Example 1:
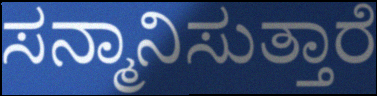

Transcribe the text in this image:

ಸನ್ಮಾನಿಸುತ್ತಾರೆ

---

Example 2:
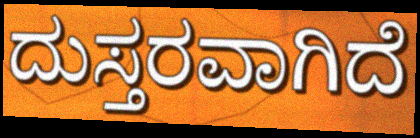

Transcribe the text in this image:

ದುಸ್ತರವಾಗಿದೆ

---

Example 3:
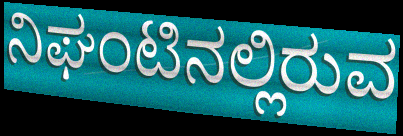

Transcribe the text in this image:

ನಿಘಂಟಿನಲ್ಲಿರುವ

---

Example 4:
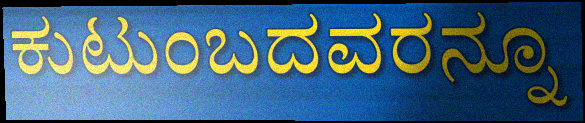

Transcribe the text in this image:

ಕುಟುಂಬದವರನ್ನೂ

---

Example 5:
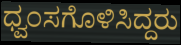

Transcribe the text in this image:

ಧ್ವಂಸಗೊಳಿಸಿದ್ದರು